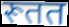
रूतत